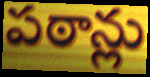
పఠాన్లు